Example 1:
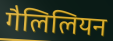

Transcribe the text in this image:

गैलिलियन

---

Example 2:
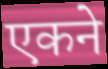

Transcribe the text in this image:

एकने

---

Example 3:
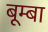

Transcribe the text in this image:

बूम्बा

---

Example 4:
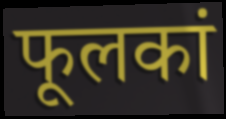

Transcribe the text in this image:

फूलकां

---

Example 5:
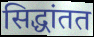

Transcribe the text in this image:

सिद्धांतत